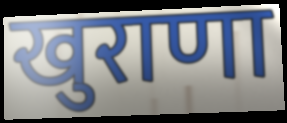
खुराणा